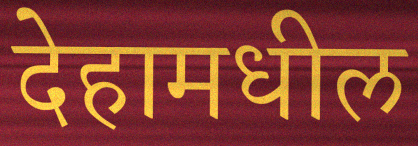
देहामधील